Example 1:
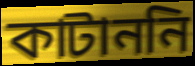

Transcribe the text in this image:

কাটাননি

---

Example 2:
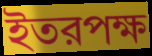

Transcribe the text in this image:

ইতরপক্ষ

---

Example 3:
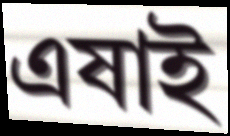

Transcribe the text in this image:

এষাই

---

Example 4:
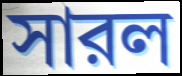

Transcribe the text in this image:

সারল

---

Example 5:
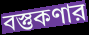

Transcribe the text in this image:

বস্তুকণার